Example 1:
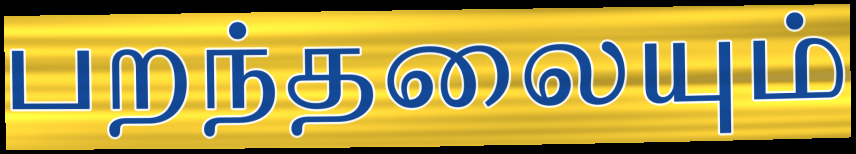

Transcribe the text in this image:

பறந்தலையும்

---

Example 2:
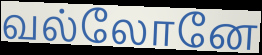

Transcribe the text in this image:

வல்லோனே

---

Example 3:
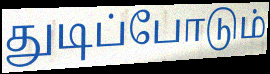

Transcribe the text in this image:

துடிப்போடும்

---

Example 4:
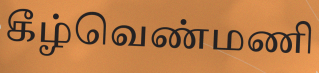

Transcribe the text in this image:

கீழ்வெண்மணி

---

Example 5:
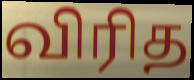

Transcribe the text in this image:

விரித